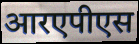
आरएपीएस